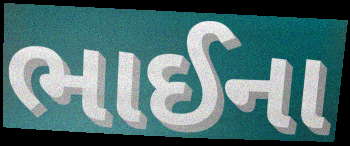
ભાઈના